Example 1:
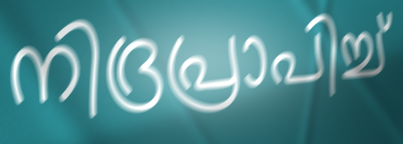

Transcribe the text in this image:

നിദ്രപ്രാപിച്ച്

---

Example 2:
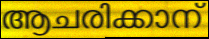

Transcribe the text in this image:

ആചരിക്കാന്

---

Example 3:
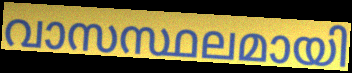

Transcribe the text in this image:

വാസസ്ഥലമായി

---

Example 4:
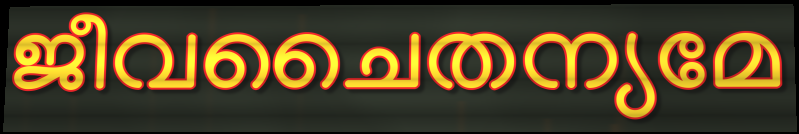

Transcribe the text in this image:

ജീവചൈതന്യമേ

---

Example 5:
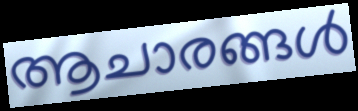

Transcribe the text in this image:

ആചാരങ്ങൾ